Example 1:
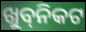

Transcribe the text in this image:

ଖୁବ୍‌ନିକଟ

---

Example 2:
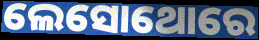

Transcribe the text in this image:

ଲେସୋଥୋରେ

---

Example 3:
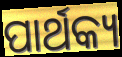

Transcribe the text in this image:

ପାର୍ଥକ୍ୟ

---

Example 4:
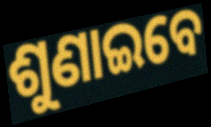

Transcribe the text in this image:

ଶୁଣାଇବେ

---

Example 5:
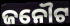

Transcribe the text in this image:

ଜନୌଟ